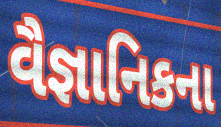
વૈજ્ઞાનિકના